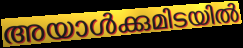
അയാൾക്കുമിടയിൽ